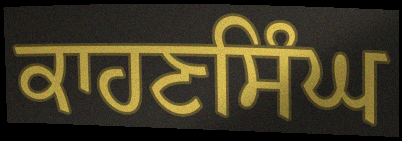
ਕਾਹਣਸਿੰਘ